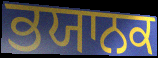
ਭਯਾਨਕ